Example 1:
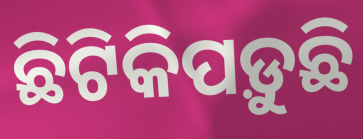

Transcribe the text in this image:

ଛିଟିକିପଡ଼ୁଛି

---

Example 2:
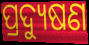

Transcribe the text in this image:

ପ୍ରଦ୍ଯୁଷଣ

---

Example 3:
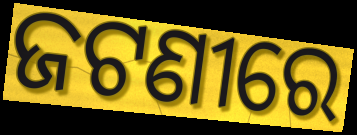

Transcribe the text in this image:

ଜଟଣୀରେ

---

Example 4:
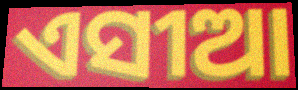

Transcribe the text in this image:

ଏସୀଆ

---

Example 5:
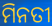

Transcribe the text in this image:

ମିନତୀ